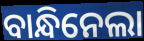
ବାନ୍ଧିନେଲା